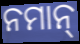
ନମାନ୍